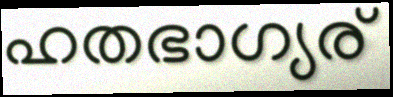
ഹതഭാഗ്യര്